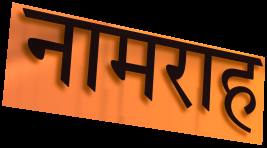
नामराह